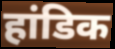
हांडिक